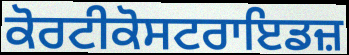
ਕੋਰਟੀਕੋਸਟਰਾਇਡਜ਼